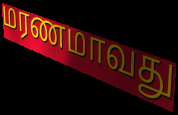
மரணமாவது